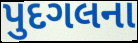
પુદગલના